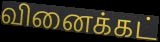
வினைக்கட்